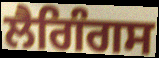
ਲੈਗਿੰਗਸ